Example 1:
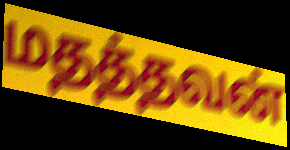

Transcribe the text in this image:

மதத்தவன்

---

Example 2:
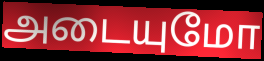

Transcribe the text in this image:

அடையுமோ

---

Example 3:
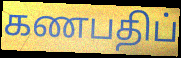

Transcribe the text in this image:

கணபதிப்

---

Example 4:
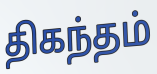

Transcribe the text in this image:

திகந்தம்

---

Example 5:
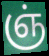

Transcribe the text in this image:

ஞ்